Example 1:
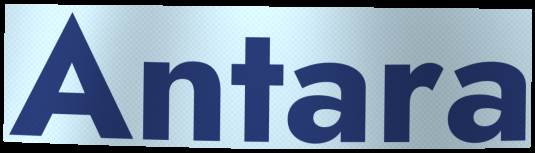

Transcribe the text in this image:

Antara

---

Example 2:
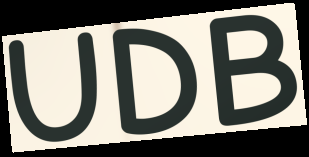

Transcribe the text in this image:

UDB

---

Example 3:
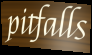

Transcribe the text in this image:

pitfalls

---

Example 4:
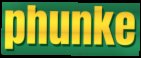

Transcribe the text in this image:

phunke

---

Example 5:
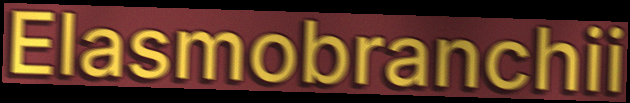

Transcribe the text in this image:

Elasmobranchii